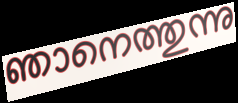
ഞാനെത്തുന്നു